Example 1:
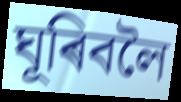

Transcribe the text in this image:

ঘূৰিবলৈ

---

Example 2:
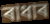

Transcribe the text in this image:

ৰাধাৰ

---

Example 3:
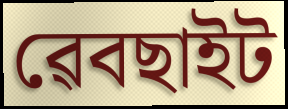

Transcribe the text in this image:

ৱেবছাইট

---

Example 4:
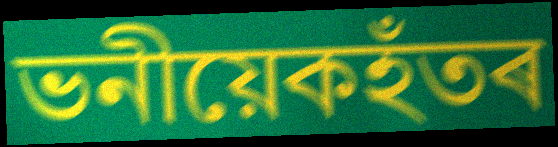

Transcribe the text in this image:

ভনীয়েকহঁতৰ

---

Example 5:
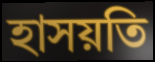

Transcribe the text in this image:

হাসয়তি